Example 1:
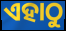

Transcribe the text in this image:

ଏହାଠୁ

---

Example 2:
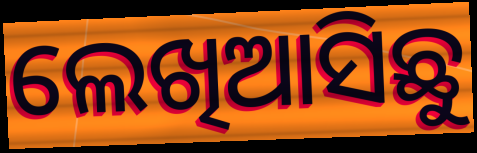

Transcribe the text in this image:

ଲେଖିଆସିଛୁ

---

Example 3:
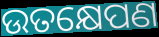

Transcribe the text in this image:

ଉତକ୍ଷେପଣ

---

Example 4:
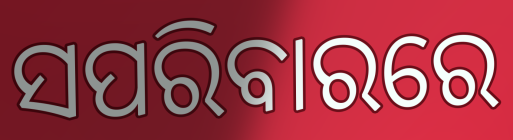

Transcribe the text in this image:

ସପରିବାରରେ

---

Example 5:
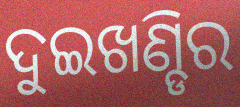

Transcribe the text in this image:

ଦୁଇଖଣ୍ଡିର